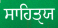
ਸਾਹਿਤੑਯ